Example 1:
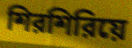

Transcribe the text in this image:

শিরশিরিয়ে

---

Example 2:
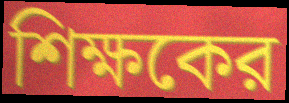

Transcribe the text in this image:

শিক্ষকের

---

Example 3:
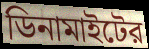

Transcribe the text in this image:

ডিনামাইটের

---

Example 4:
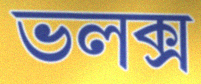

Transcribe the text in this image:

ভলক্স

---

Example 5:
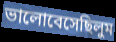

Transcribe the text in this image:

ভালোবেসেছিলুম